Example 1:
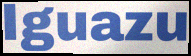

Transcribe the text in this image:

Iguazu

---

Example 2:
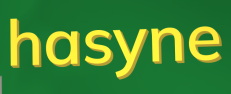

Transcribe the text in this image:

hasyne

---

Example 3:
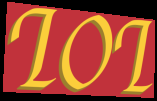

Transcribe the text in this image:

IOI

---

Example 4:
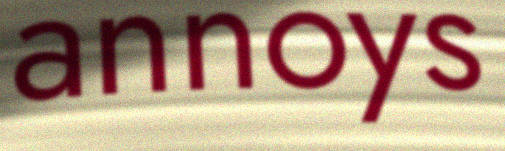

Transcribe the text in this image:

annoys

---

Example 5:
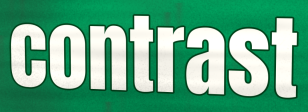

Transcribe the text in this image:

contrast